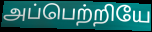
அப்பெற்றியே